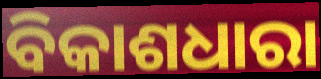
ବିକାଶଧାରା